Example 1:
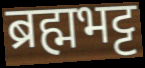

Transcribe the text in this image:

ब्रह्मभट्ट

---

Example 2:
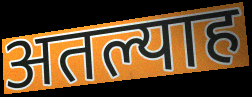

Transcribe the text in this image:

अतल्याह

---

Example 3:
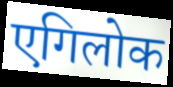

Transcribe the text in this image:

एगिलोक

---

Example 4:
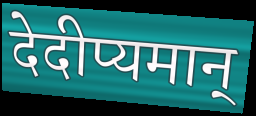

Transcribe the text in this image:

देदीप्यमान्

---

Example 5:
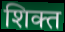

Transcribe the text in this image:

शिक्त